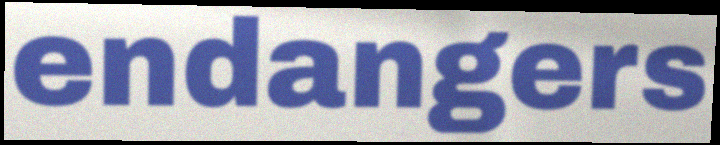
endangers